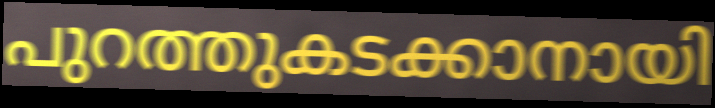
പുറത്തുകടക്കാനായി